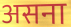
असना